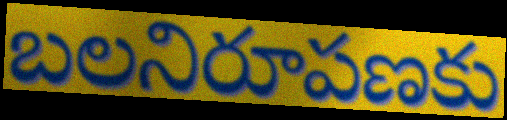
బలనిరూపణకు